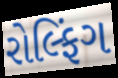
રોલ્ફિંગ